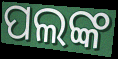
ପଲଙ୍କ